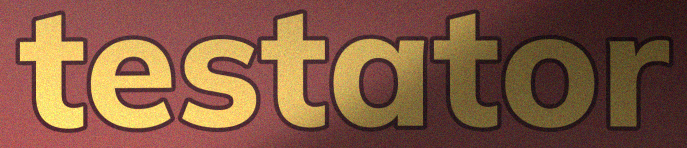
testator